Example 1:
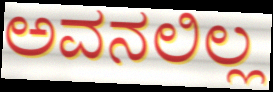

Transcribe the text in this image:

ಅವನಲಿಲ್ಲ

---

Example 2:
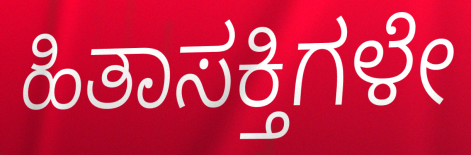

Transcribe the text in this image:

ಹಿತಾಸಕ್ತಿಗಳೇ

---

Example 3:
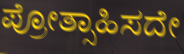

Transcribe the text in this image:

ಪ್ರೋತ್ಸಾಹಿಸದೇ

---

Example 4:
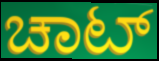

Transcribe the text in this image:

ಚಾಟ್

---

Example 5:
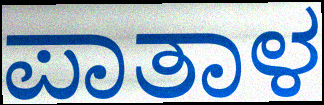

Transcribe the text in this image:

ಪಾತಾಳ